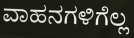
ವಾಹನಗಳಿಗೆಲ್ಲ